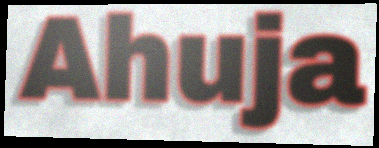
Ahuja